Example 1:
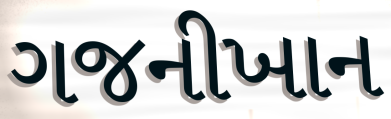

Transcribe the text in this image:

ગજનીખાન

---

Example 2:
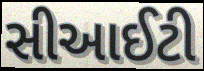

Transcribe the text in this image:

સીઆઈટી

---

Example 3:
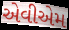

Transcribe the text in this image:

એવીએમ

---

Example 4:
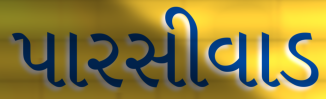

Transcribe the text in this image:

પારસીવાડ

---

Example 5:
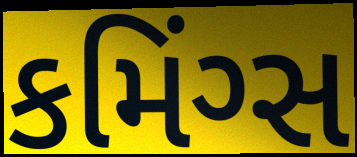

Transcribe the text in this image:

કમિંગ્સ